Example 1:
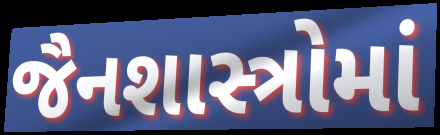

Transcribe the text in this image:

જૈનશાસ્ત્રોમાં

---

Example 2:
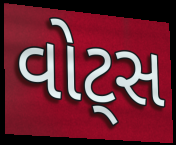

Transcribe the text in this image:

વોટ્સ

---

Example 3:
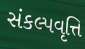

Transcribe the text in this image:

સંકલ્પવૃત્તિ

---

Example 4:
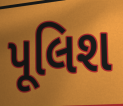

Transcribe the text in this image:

પૂલિશ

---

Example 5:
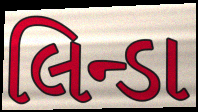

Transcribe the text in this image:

લિન્ડા